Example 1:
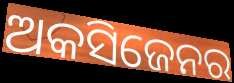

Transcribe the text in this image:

ଅକସିଜେନର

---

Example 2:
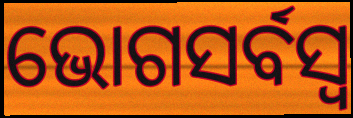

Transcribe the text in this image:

ଭୋଗସର୍ବସ୍ୱ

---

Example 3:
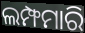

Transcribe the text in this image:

ଲମ୍ଫମାରି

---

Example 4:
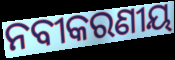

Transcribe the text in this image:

ନବୀକରଣୀୟ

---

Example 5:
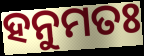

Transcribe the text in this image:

ହନୁମତଃ